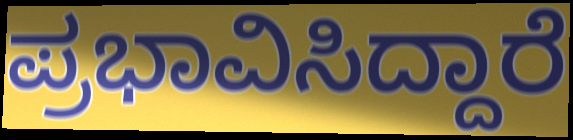
ಪ್ರಭಾವಿಸಿದ್ದಾರೆ